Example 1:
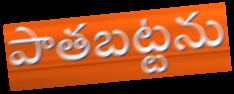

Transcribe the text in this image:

పాతబట్టను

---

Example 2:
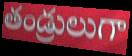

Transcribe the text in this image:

తండ్రులుగా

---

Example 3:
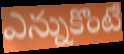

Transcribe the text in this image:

ఎన్నుకొంటే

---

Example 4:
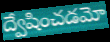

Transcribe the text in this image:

ద్వేషించడమో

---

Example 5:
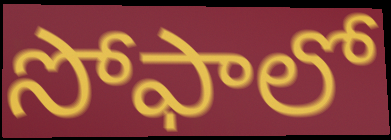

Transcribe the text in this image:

సోఫాలో